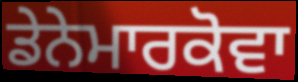
ਡੇਨੇਮਾਰਕੋਵਾ